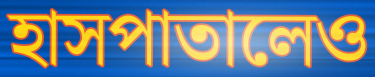
হাসপাতালেও